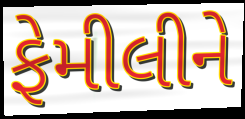
ફેમીલીને